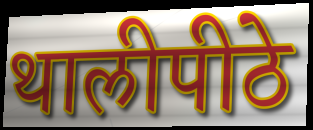
थालीपीठे